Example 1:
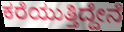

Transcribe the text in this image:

ಕರೆಯುತ್ತಿದ್ದೇನೆ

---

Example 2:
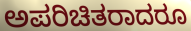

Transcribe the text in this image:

ಅಪರಿಚಿತರಾದರೂ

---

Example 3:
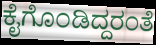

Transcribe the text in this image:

ಕೈಗೊಂಡಿದ್ದರಂತೆ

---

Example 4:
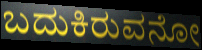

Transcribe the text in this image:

ಬದುಕಿರುವನೋ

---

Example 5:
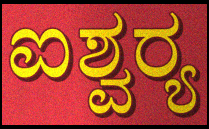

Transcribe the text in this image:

ಐಶ್ವರ‍್ಯ